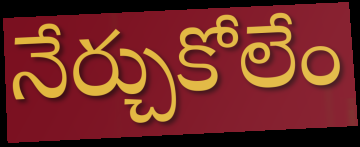
నేర్చుకోలేం